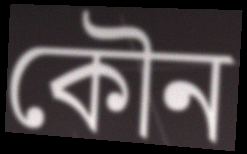
কৌন